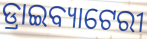
ଡ୍ରାଇବ୍ୟାଟେରୀ